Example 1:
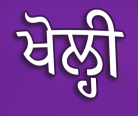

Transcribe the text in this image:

ਖੋਲ੍ਹੀ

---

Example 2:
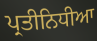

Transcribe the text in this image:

ਪ੍ਰਤੀਨਿਧੀਆ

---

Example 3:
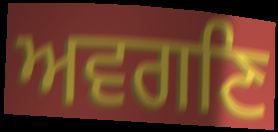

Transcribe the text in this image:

ਅਵਗਣਿ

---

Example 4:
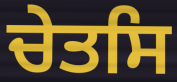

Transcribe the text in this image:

ਚੇਤਸਿ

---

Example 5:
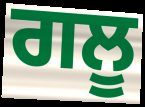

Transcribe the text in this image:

ਗਲੂ